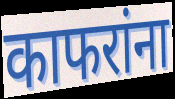
काफरांना